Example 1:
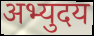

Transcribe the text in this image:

अभ्युदय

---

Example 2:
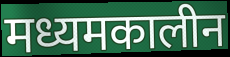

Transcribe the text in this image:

मध्यमकालीन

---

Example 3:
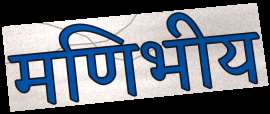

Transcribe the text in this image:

मणिभीय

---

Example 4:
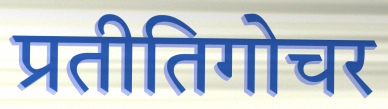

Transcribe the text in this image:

प्रतीतिगोचर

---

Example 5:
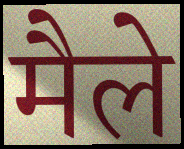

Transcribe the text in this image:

मैले